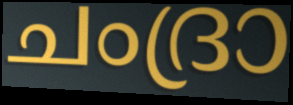
ചംദ്രാ